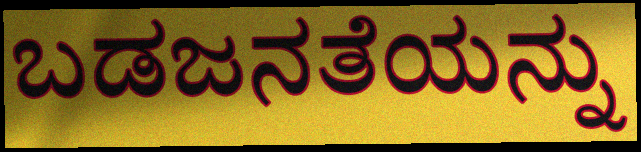
ಬಡಜನತೆಯನ್ನು